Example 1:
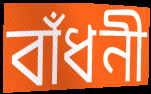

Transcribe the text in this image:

বাঁধনী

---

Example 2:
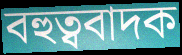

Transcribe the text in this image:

বহুত্ববাদক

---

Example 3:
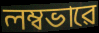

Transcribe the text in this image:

লম্বভাৱে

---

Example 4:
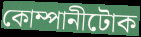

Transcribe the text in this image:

কোম্পানীটোক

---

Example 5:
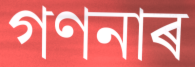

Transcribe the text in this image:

গণনাৰ